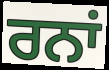
ਰਨਾਂ